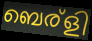
ബെര്ളി